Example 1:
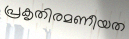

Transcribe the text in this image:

പ്രകൃതിരമണീയത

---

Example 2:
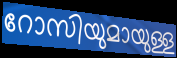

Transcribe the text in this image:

റോസിയുമായുള്ള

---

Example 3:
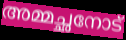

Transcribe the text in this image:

അമ്മച്ഛനോട്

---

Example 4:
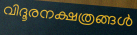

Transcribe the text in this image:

വിദൂരനക്ഷത്രങ്ങൾ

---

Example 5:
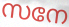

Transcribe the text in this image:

സനേ